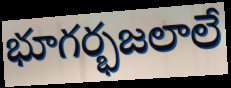
భూగర్భజలాలే